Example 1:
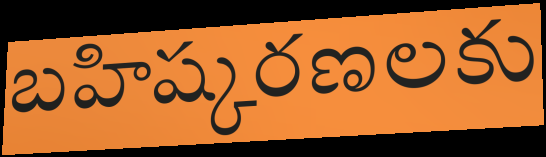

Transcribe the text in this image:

బహిష్కరణలకు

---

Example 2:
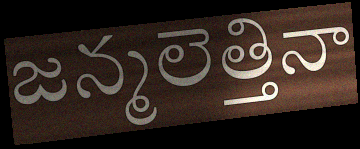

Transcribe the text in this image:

జన్మలెత్తినా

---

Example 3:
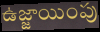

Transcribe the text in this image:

ఉజ్జాయింపు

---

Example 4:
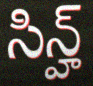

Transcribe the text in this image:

సిన్హ్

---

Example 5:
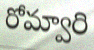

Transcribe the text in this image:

రోమ్వారి